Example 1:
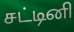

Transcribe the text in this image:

சட்டினி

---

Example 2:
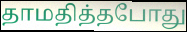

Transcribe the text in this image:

தாமதித்தபோது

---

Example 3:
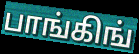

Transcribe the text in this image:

பாங்கிங்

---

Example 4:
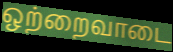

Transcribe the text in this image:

ஒற்றைவாடை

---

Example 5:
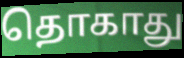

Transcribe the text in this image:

தொகாது